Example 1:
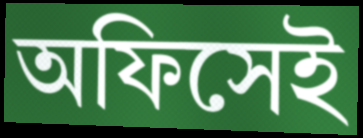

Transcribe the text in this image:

অফিসেই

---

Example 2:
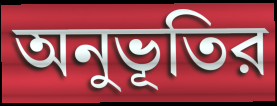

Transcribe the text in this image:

অনুভূতির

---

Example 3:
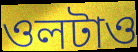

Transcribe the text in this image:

ওলটাও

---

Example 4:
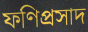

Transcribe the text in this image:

ফণিপ্রসাদ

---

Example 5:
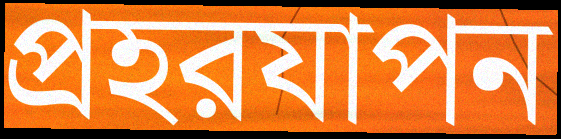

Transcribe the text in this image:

প্রহরযাপন